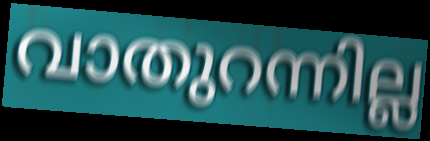
വാതുറന്നില്ല